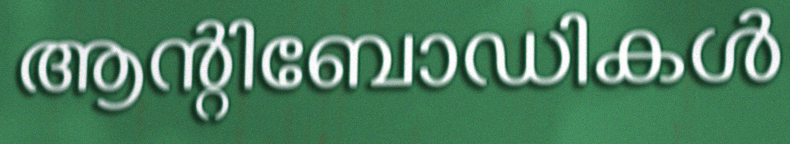
ആന്റിബോഡികൾ